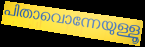
പിതാവൊന്നേയുള്ളൂ